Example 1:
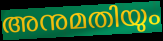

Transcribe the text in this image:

അനുമതിയും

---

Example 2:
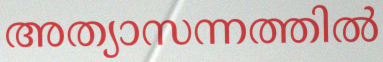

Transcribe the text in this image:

അത്യാസന്നത്തിൽ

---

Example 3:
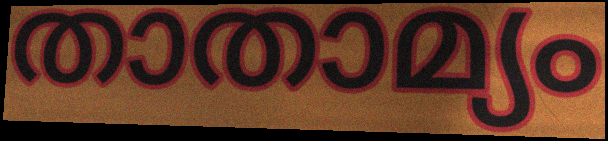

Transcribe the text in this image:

താതാമ്യം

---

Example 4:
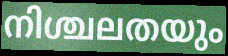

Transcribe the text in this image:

നിശ്ചലതയും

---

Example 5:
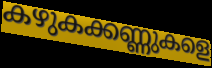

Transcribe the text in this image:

കഴുകക്കണ്ണുകളെ